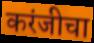
करंजीचा